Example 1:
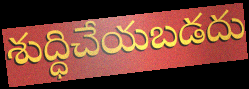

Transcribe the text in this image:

శుద్ధిచేయబడదు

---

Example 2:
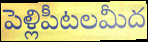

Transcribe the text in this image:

పెళ్లిపీటలమీద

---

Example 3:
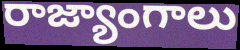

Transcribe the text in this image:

రాజ్యాంగాలు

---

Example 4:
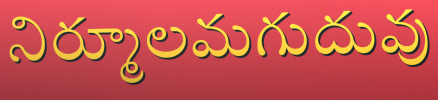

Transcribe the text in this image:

నిర్మూలమగుదువు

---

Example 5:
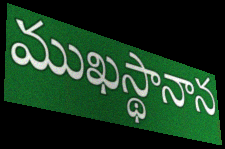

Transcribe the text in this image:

ముఖస్థానాన